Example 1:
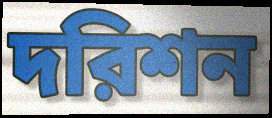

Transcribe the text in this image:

দরিশন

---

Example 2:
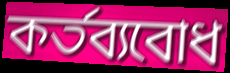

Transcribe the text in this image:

কর্তব্যবোধ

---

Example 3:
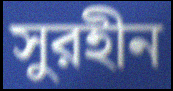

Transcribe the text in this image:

সুরহীন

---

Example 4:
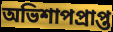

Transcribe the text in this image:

অভিশাপপ্রাপ্ত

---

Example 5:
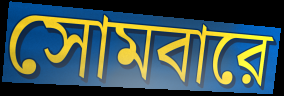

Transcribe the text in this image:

সোমবারে